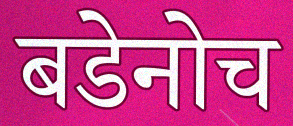
बडेनोच